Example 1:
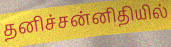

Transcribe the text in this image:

தனிச்சன்னிதியில்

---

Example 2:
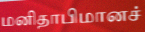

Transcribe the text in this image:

மனிதாபிமானச்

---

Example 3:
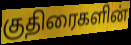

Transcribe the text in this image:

குதிரைகளின்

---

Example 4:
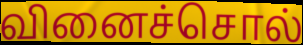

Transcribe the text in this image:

வினைச்சொல்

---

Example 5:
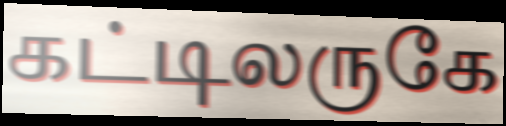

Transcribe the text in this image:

கட்டிலருகே